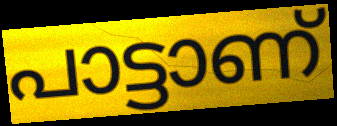
പാട്ടാണ്